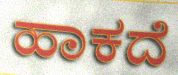
ಹಾಕದೆ